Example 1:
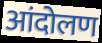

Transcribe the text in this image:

आंदोलण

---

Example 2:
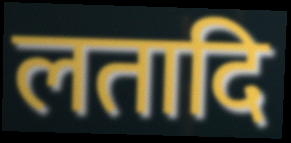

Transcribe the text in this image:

लतादि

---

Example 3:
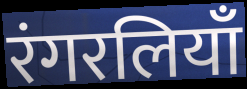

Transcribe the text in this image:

रंगरलियाँ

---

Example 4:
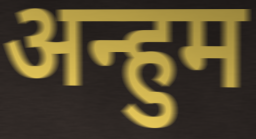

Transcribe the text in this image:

अन्हुम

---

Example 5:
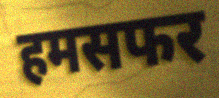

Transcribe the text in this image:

हमसफर